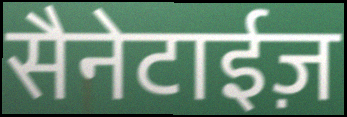
सैनेटाईज़